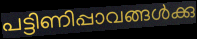
പട്ടിണിപ്പാവങ്ങൾക്കു